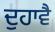
ਦੁਹਾਵੈ